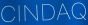
CINDAQ